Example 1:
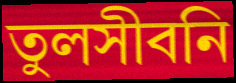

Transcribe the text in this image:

তুলসীবনি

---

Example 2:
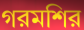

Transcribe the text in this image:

গরমশির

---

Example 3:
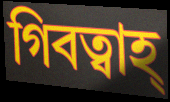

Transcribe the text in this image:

গিবত্বাহ্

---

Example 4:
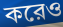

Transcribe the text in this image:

করেও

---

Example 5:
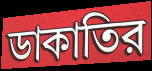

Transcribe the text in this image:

ডাকাতির